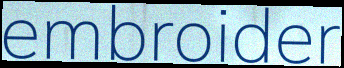
embroider